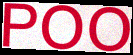
POO